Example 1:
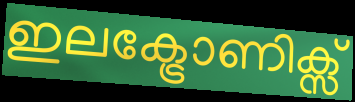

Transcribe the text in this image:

ഇലക്ട്രോണിക്സ്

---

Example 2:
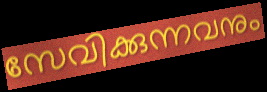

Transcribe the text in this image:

സേവിക്കുന്നവനും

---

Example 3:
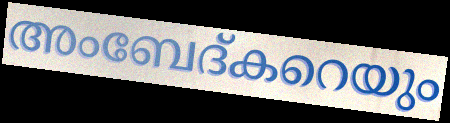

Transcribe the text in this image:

അംബേദ്കറെയും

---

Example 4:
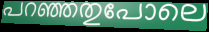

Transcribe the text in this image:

പറഞ്ഞതുപോലെ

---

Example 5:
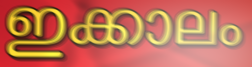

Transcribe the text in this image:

ഇക്കാലം